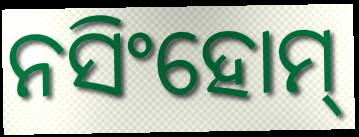
ନସିଂହୋମ୍